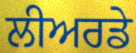
ਲੀਅਰਡੇ